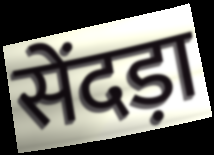
सेंदड़ा